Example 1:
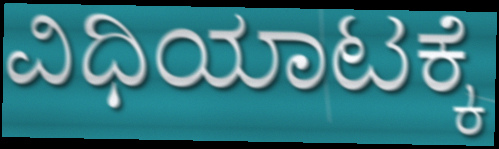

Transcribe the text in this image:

ವಿಧಿಯಾಟಕ್ಕೆ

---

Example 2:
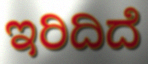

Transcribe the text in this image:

ಇರಿದಿದೆ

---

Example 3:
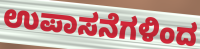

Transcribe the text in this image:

ಉಪಾಸನೆಗಳಿಂದ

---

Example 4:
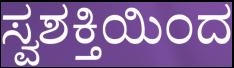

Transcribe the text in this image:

ಸ್ವಶಕ್ತಿಯಿಂದ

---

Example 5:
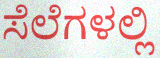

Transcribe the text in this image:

ಸೆಲೆಗಳಲ್ಲಿ